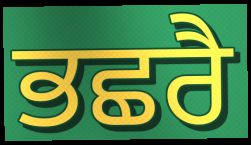
ਭਛਰੈ